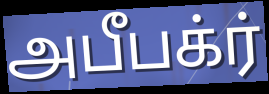
அபீபக்ர்